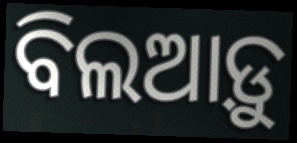
ବିଲଆଡ଼ୁ